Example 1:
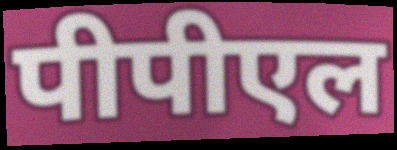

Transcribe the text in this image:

पीपीएल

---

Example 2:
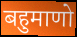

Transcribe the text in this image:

बहुमाणो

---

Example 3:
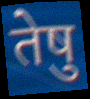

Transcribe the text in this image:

तेषु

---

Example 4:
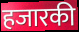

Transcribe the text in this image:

हजारकी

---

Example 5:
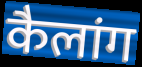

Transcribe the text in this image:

कैलांग